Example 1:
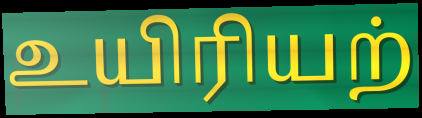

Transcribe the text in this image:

உயிரியற்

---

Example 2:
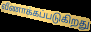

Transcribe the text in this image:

வீணாக்கப்படுகிறது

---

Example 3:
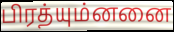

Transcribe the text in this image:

பிரத்யும்னனை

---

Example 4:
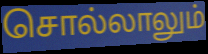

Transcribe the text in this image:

சொல்லாலும்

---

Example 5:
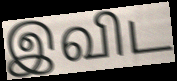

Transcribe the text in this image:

இவிட